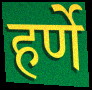
हर्णे